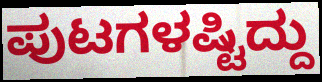
ಪುಟಗಳಷ್ಟಿದ್ದು